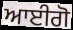
ਆਈਗੋ